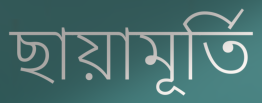
ছায়ামূর্তি